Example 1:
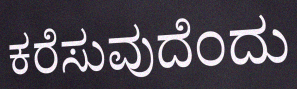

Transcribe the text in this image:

ಕರೆಸುವುದೆಂದು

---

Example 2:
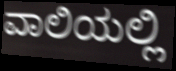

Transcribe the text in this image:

ವಾಲಿಯಲ್ಲಿ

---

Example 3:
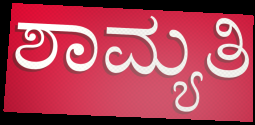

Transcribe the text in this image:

ಶಾಮ್ಯತಿ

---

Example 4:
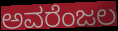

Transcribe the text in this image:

ಅವರೆಂಜಲ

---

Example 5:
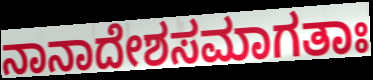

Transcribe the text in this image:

ನಾನಾದೇಶಸಮಾಗತಾಃ